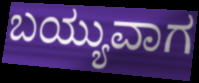
ಬಯ್ಯುವಾಗ